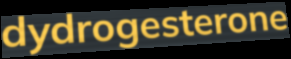
dydrogesterone